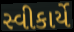
સ્વીકાર્યે